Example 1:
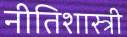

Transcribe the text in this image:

नीतिशास्त्री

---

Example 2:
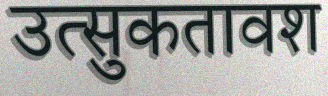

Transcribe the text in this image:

उत्सुकतावश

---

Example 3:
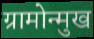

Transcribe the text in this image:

ग्रामोन्मुख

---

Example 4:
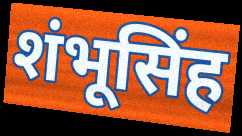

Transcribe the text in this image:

शंभूसिंह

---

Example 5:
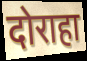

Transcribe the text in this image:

दोराहा